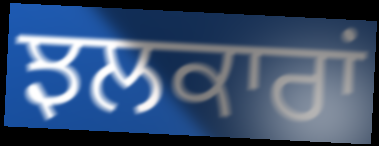
ਝਲਕਾਰਾਂ